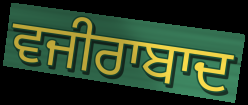
ਵਜੀਰਾਬਾਦ